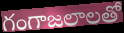
గంగాజలాలతో